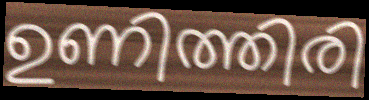
ഉണിത്തിരി